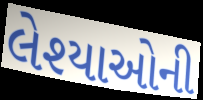
લેશ્યાઓની